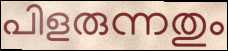
പിളരുന്നതും